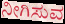
ನೀಗಿಸುವ